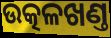
ଉତ୍କଳଖଣ୍ତ